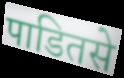
पाडितसे